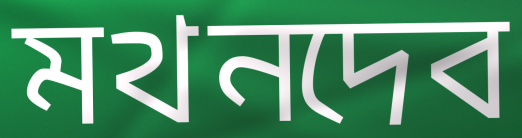
মথনদেব